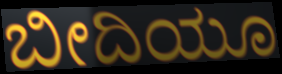
ಬೀದಿಯೂ